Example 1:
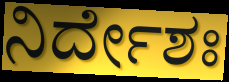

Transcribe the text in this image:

ನಿರ್ದೇಶಃ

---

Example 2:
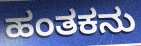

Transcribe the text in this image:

ಹಂತಕನು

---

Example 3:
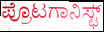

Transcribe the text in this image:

ಪ್ರೊಟಗಾನಿಸ್ಟ್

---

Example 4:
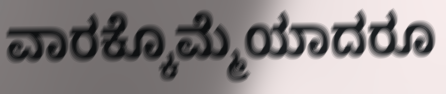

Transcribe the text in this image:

ವಾರಕ್ಕೊಮ್ಮೆಯಾದರೂ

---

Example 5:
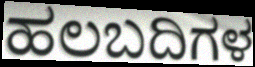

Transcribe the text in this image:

ಹಲಬದಿಗಳ